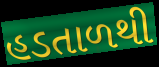
હડતાળથી